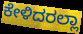
ಕೇಳಿದರಲ್ಲಾ